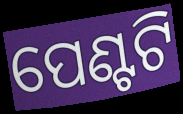
ପେଣ୍ଟଟି